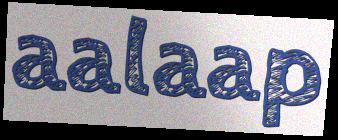
aalaap